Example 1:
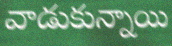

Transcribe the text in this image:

వాడుకున్నాయి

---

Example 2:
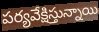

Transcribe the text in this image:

పర్యవేక్షిస్తున్నాయి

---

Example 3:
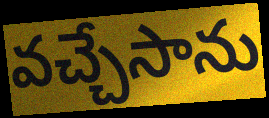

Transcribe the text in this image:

వచ్చేసాను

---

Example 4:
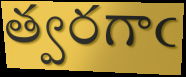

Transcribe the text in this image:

త్వరగాఁ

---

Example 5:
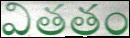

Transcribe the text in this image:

వితతం